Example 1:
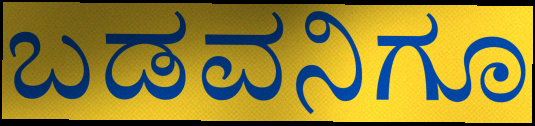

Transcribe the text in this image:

ಬಡವನಿಗೂ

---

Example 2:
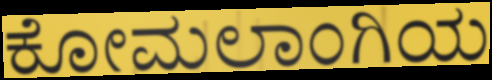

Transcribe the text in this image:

ಕೋಮಲಾಂಗಿಯ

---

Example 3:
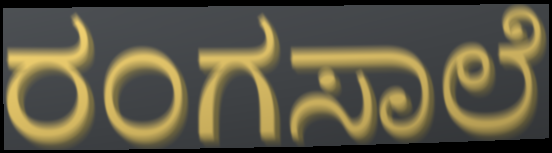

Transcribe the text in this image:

ರಂಗಸಾಲೆ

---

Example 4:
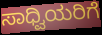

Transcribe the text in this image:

ಸಾಧ್ವಿಯರಿಗೆ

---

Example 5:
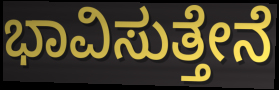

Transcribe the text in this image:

ಭಾವಿಸುತ್ತೇನೆ